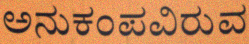
ಅನುಕಂಪವಿರುವ